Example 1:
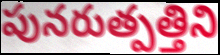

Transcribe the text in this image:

పునరుత్పత్తిని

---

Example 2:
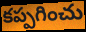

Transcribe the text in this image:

కప్పగించు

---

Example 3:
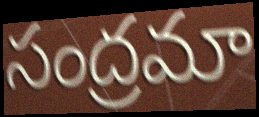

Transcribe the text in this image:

సంద్రమా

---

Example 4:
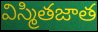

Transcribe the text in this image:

విస్మితజాత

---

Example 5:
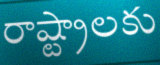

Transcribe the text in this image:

రాష్ట్రాలకు